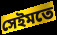
সেইমতে